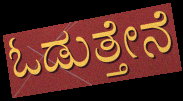
ಓಡುತ್ತೇನೆ